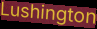
Lushington